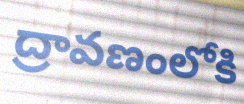
ద్రావణంలోకి